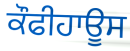
ਕੌਫੀਹਾਊਸ